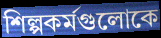
শিল্পকর্মগুলোকে